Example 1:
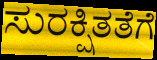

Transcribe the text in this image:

ಸುರಕ್ಷಿತತೆಗೆ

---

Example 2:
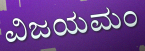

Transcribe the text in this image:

ವಿಜಯಮಂ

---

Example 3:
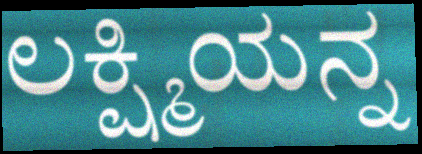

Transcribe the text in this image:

ಲಕ್ಷ್ಮಿಯನ್ನ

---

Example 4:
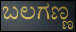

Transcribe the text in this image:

ಬಲಗಣ್ಣ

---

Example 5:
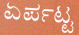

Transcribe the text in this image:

ಏರ್ಪಟ್ಟ